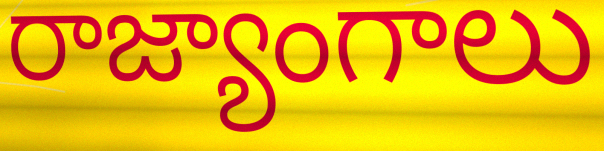
రాజ్యాంగాలు